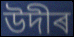
উদীৰ